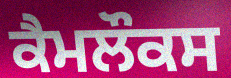
ਕੈਮਲੌਕਸ